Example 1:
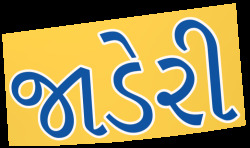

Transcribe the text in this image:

જાડેરી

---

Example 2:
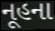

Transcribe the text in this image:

નૂહના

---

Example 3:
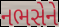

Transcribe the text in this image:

નભસેને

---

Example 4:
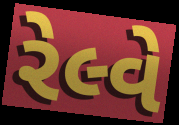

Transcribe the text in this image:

રેલ્વે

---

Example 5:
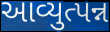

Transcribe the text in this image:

આવ્યુત્પન્ન